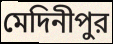
মেদিনীপুর